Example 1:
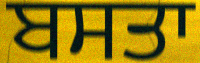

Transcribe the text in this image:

ਬਸਤਾ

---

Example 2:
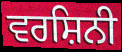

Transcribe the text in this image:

ਵਰਸ਼ਿਨੀ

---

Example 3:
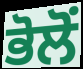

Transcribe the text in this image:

ਭੋਲੋਂ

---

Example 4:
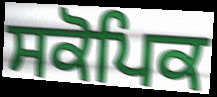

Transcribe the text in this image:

ਸਕੋਪਿਕ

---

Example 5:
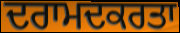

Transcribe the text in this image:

ਦਰਾਮਦਕਰਤਾ